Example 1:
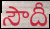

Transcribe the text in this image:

సౌదీ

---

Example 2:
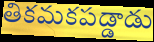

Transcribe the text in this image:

తికమకపడ్డాడు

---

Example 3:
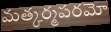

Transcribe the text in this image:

మత్కర్మపరమో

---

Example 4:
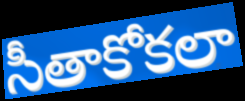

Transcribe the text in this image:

సీతాకోకలా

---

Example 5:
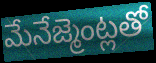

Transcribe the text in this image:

మేనేజ్మెంట్లతో